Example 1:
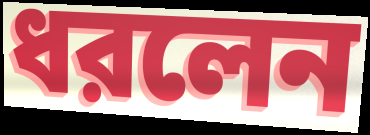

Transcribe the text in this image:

ধরলেন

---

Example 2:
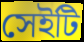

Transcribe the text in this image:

সেইটি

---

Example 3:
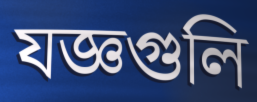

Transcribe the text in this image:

যজ্ঞগুলি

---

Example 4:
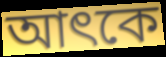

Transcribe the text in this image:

আৎকে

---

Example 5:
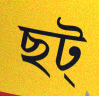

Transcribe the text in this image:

ছট্